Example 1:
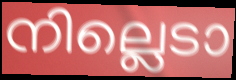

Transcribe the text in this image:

നില്ലെടാ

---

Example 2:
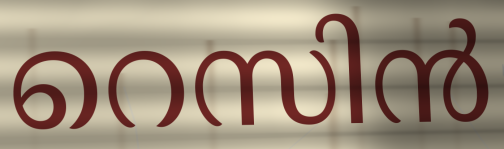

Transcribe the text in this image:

റെസിൻ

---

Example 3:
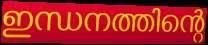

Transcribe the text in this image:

ഇന്ധനത്തിന്റെ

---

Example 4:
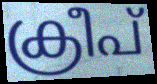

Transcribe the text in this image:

ക്രീപ്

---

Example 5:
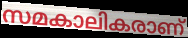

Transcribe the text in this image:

സമകാലികരാണ്